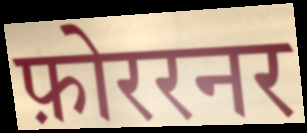
फ़ोररनर